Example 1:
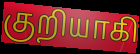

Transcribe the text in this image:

குறியாகி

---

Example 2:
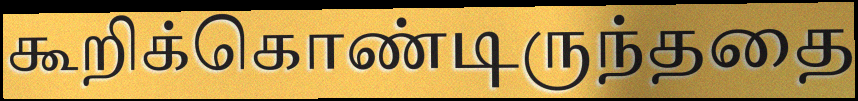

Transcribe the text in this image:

கூறிக்கொண்டிருந்ததை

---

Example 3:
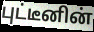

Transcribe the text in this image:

புட்டீனின்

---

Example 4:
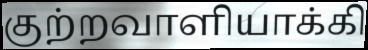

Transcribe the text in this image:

குற்றவாளியாக்கி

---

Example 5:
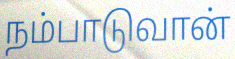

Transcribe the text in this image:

நம்பாடுவான்